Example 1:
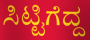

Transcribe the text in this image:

ಸಿಟ್ಟಿಗೆದ್ದ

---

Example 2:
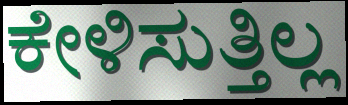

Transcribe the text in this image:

ಕೇಳಿಸುತ್ತಿಲ್ಲ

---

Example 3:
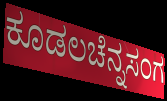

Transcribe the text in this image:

ಕೂಡಲಚೆನ್ನಸಂಗ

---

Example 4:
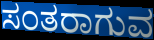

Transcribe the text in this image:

ಸಂತರಾಗುವ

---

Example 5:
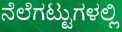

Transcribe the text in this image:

ನೆಲೆಗಟ್ಟುಗಳಲ್ಲಿ